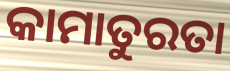
କାମାତୁରତା